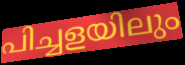
പിച്ചളയിലും